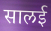
सालई